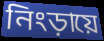
নিংড়ায়ে